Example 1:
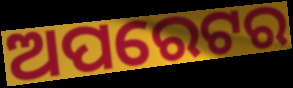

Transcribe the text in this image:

ଅପରେଟର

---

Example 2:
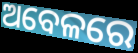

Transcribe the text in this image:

ଅବେଳରେ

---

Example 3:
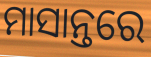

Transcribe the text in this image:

ମାସାନ୍ତରେ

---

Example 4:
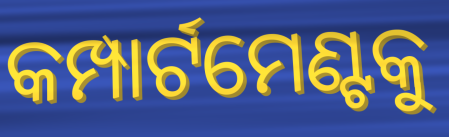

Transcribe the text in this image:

କମ୍ପାର୍ଟମେଣ୍ଟକୁ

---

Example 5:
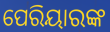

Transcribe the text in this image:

ପେରିୟାରଙ୍କ